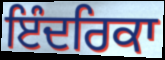
ਇੰਦਰਿਕਾ